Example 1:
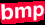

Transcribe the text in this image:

bmp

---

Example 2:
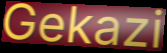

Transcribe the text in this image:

Gekazi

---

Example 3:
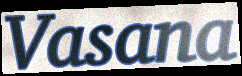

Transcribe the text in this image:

Vasana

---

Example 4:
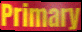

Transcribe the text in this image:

Primary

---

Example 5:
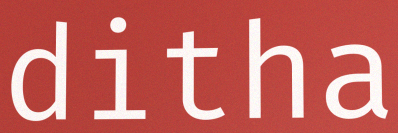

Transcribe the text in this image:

ditha